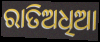
ରାତିଅଧିଆ